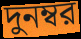
দুনম্বর